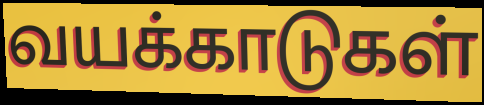
வயக்காடுகள்